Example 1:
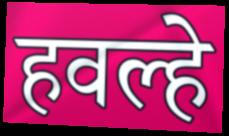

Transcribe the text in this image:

हवल्हे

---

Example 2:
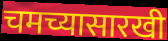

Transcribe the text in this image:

चमच्यासारखी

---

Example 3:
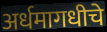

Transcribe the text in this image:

अर्धमागधीचे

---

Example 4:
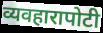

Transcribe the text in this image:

व्यवहारापोटी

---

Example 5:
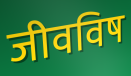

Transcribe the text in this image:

जीवविष